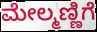
ಮೇಲ್ಮಣ್ಣಿಗೆ